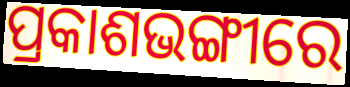
ପ୍ରକାଶଭଙ୍ଗୀରେ